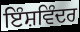
ਇੰਸ਼ਵਿੰਦਰ